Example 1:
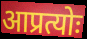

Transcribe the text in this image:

आप्रत्योः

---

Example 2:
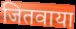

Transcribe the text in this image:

जितवाया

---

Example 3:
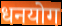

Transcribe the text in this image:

धनयोग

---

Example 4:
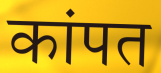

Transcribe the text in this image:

कांपत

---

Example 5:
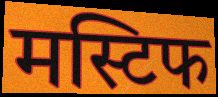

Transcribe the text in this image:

मस्टिफ